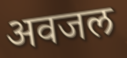
अवजल